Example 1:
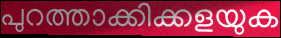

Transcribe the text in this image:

പുറത്താക്കിക്കളയുക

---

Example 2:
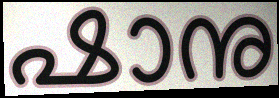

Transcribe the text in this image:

ഷാനു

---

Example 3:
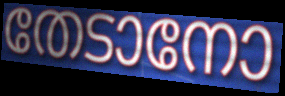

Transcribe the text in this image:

തേടാനോ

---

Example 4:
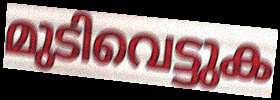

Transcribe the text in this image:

മുടിവെട്ടുക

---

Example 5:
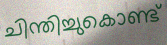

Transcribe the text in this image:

ചിന്തിച്ചുകൊണ്ട്